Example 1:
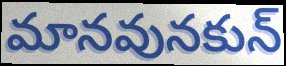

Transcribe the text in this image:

మానవునకున్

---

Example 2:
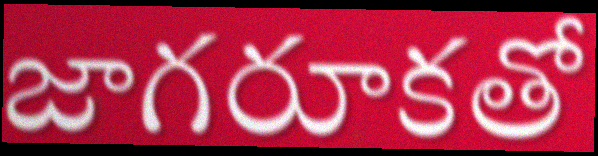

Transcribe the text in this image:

జాగరూకతో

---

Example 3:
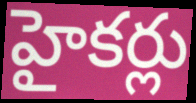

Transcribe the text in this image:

హైకర్లు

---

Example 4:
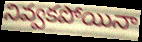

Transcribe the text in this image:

నివ్వకపోయినా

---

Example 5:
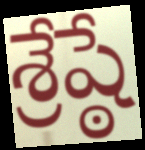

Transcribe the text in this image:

శ్రేష్ఠే